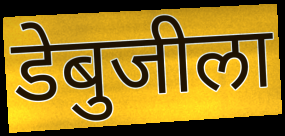
डेबुजीला